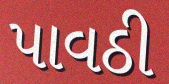
પાવઠી